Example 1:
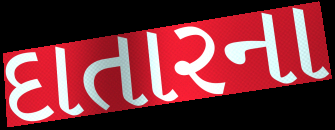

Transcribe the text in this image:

દાતારના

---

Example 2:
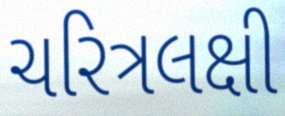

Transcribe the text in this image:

ચરિત્રલક્ષી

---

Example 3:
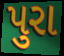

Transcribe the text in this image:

પુરા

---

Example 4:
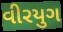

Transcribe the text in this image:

વીરયુગ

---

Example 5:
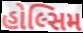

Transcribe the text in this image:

હોલ્સિમ